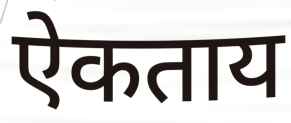
ऐकताय